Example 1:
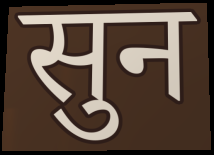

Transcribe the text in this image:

सुन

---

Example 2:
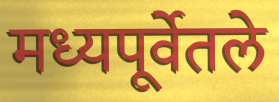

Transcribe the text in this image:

मध्यपूर्वेतले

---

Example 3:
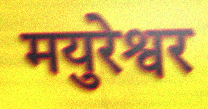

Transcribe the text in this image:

मयुरेश्वर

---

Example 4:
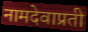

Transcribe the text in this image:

नामदेवाप्रती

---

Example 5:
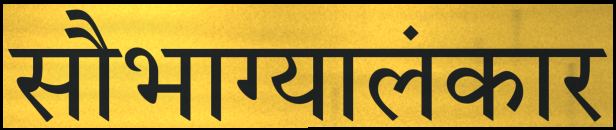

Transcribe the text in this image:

सौभाग्यालंकार